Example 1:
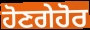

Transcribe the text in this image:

ਹੋਣਗੇਹੋਰ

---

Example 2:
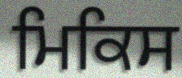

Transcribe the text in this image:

ਮਿਕਿਸ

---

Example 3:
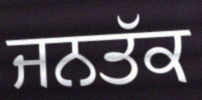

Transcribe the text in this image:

ਜਨਤੱਕ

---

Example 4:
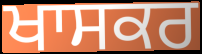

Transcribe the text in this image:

ਖਾਸਕਰ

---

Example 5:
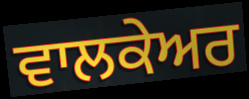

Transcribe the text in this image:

ਵਾਲਕੇਅਰ